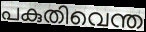
പകുതിവെന്ത